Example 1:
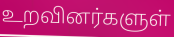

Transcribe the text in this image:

உறவினர்களுள்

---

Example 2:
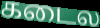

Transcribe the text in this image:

கடைல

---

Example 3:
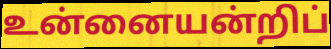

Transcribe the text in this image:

உன்னையன்றிப்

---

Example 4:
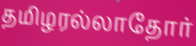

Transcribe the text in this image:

தமிழரல்லாதோர்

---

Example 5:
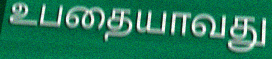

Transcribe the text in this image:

உபதையாவது